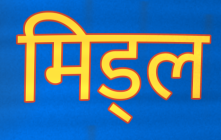
मिड्ल